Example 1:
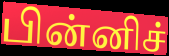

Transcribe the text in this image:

பின்னிச்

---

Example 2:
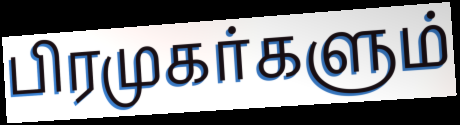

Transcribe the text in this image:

பிரமுகர்களும்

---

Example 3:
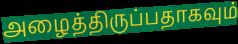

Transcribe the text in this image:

அழைத்திருப்பதாகவும்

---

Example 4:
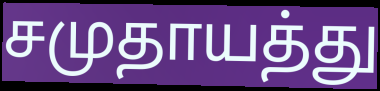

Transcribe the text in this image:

சமுதாயத்து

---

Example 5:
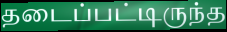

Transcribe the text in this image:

தடைப்பட்டிருந்த